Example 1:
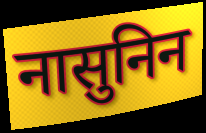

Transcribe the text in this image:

नासुनिन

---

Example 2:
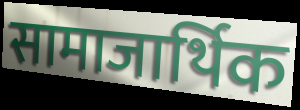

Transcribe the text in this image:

सामाजार्थिक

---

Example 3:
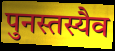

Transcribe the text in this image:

पुनस्तस्यैव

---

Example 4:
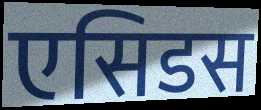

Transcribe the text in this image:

एसिडस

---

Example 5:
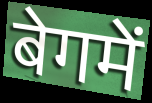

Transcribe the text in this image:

बेगमें